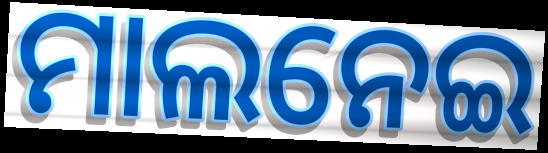
ମାଲନେଇ